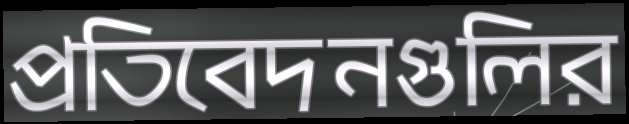
প্রতিবেদনগুলির